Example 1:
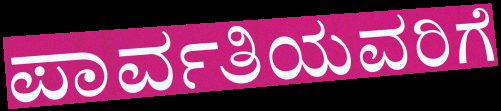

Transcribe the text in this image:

ಪಾರ್ವತಿಯವರಿಗೆ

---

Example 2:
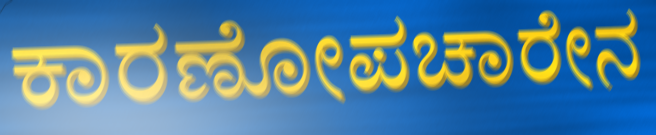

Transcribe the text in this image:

ಕಾರಣೋಪಚಾರೇನ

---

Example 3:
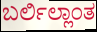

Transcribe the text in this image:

ಬರ್ಲಿಲ್ಲಾಂತ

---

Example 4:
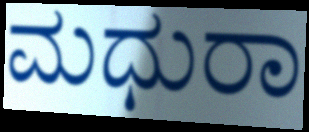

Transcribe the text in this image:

ಮಧುರಾ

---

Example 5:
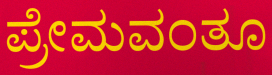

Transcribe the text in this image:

ಪ್ರೇಮವಂತೂ